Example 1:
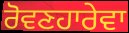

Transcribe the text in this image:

ਰੋਵਣਹਾਰੇਵਾ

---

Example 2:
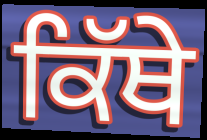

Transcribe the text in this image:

ਕਿੱਥੇ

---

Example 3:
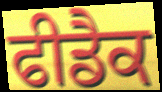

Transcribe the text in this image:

ਫੀਡੈਕ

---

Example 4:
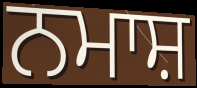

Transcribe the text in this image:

ਨਮਾਸ਼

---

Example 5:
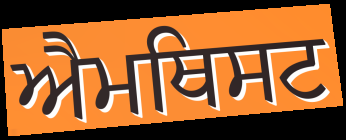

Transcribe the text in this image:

ਐਮਥਿਸਟ